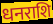
धनराशि